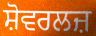
ਸ਼ੋਵਰਲਜ਼